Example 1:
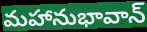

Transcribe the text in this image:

మహానుభావాన్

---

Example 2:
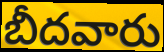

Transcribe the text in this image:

బీదవారు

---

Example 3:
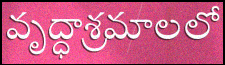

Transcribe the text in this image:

వృద్ధాశ్రమాలలో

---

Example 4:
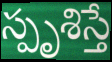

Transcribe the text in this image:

స్పృశిస్తే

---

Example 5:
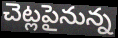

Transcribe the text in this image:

చెట్లపైనున్న